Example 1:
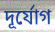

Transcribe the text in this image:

দূর্যোগ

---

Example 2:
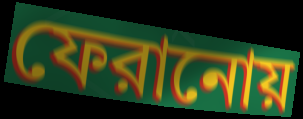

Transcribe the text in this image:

ফেরানোয়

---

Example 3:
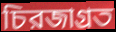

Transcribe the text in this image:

চিরজাগ্রত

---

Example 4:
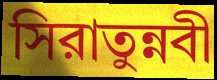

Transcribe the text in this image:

সিরাতুন্নবী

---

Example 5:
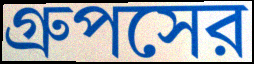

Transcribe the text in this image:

গ্রুপসের